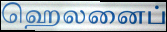
ஹெலனைப்